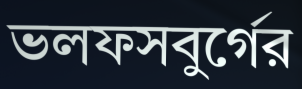
ভলফসবুর্গের